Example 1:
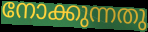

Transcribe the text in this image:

നോക്കുന്നതു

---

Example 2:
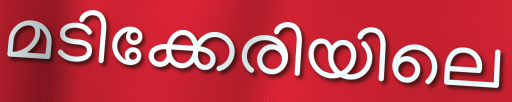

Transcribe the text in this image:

മടിക്കേരിയിലെ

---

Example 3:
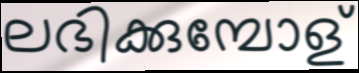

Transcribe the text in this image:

ലഭിക്കുമ്പോള്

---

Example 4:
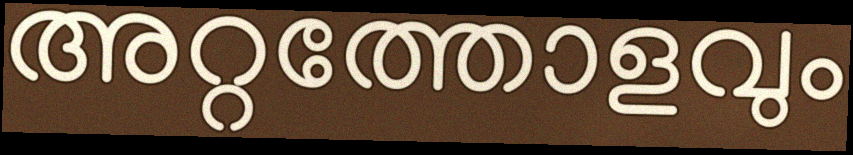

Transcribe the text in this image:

അറ്റത്തോളവും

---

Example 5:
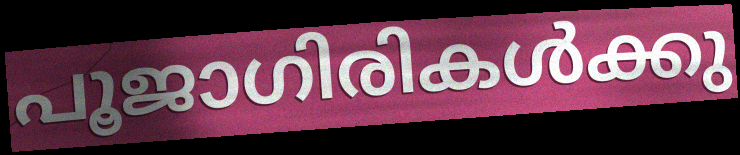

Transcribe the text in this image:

പൂജാഗിരികൾക്കു